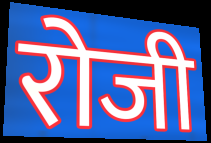
रोजी